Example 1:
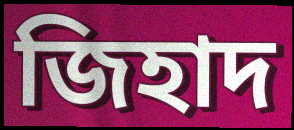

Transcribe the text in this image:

জিহাদ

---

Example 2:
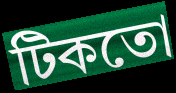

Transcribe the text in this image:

টিকতো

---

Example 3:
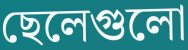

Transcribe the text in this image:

ছেলেগুলো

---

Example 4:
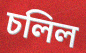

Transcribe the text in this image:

চলিল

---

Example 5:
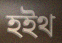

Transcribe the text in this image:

হইথ